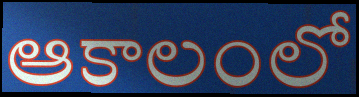
ఆకాలంలో